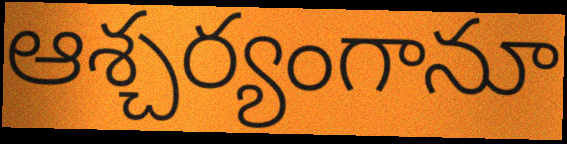
ఆశ్చర్యంగానూ